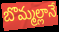
బొమ్మల్లానే